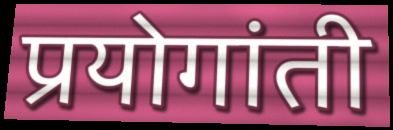
प्रयोगांती